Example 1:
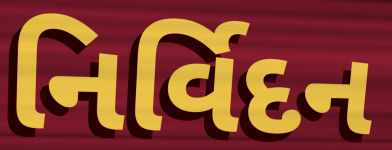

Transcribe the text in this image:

નિર્વિદન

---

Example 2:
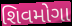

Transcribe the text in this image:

શિવમોગા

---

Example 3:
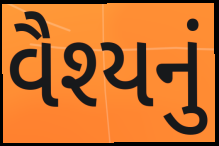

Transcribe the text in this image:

વૈશ્યનું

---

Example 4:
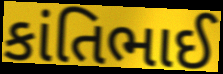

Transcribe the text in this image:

કાંતિભાઈ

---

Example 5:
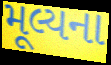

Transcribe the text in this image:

મૂલ્યના